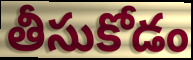
తీసుకోడం